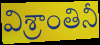
విశ్రాంతినీ